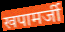
खपामर्जी